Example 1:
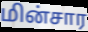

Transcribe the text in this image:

மின்சார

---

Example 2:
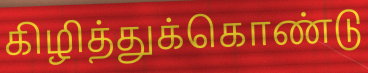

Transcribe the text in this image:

கிழித்துக்கொண்டு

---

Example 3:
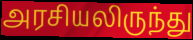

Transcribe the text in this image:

அரசியலிருந்து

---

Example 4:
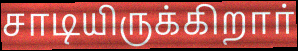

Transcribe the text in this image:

சாடியிருக்கிறார்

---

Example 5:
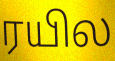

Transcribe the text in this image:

ரயில